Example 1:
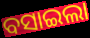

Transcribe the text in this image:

ବସାଇଲା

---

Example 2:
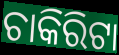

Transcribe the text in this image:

ଚାକିରିଟା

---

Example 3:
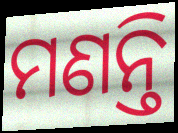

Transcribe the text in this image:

ମଣନ୍ତି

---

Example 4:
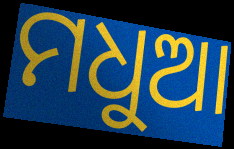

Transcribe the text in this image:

ମଧୁଆ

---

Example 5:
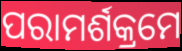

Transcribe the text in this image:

ପରାମର୍ଶକ୍ରମେ